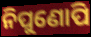
ନିପୁଣୋପି